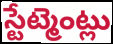
స్టేట్మెంట్లు